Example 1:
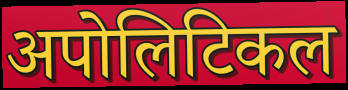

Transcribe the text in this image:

अपोलिटिकल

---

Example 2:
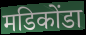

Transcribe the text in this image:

मडिकोंडा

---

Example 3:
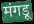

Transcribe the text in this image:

मंगडू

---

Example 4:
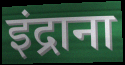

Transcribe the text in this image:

इंद्राना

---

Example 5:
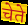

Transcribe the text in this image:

चेते